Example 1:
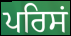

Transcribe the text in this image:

ਪਰਿਸਂ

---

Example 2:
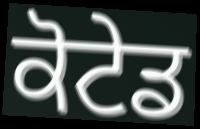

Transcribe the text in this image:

ਕੋਟੇਡ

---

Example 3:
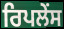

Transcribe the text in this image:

ਰਿਪਲੇਂਸ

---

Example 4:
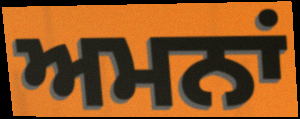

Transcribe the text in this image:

ਅਮਨਾਂ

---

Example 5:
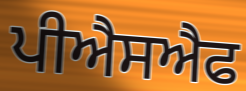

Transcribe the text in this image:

ਪੀਐਸਐਫ